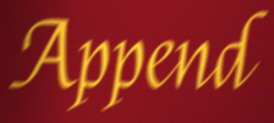
Append